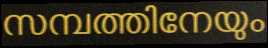
സമ്പത്തിനേയും